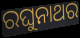
ରଘୁନାଥର